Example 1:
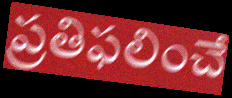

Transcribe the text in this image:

ప్రతిఫలించే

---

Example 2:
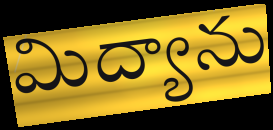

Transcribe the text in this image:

మిద్యాను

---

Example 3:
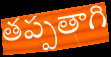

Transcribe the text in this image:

తప్పతాగి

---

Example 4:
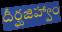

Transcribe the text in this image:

దీర్ఘజిహ్వాం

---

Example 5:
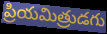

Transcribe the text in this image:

ప్రియమిత్రుడగు